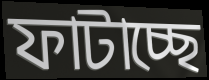
ফাটাচ্ছে